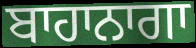
ਬਾਹਾਨਾਗਾ